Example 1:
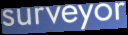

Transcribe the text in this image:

surveyor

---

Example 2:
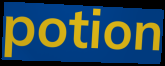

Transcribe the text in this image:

potion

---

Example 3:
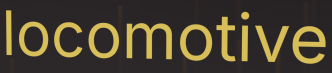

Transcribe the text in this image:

locomotive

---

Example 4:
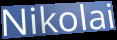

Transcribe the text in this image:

Nikolai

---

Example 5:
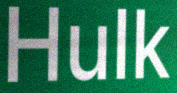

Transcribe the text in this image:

Hulk